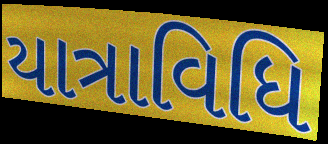
યાત્રાવિધિ